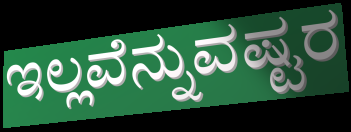
ಇಲ್ಲವೆನ್ನುವಷ್ಟರ